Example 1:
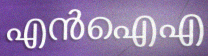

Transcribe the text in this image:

എൻഐഎ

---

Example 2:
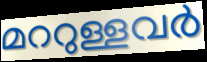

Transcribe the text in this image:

മററുള്ളവർ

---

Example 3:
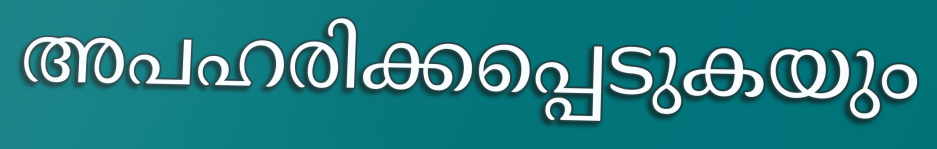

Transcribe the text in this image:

അപഹരിക്കപ്പെടുകയും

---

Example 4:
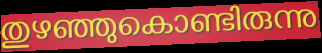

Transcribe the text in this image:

തുഴഞ്ഞുകൊണ്ടിരുന്നു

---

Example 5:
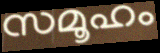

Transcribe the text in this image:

സമൂഹം